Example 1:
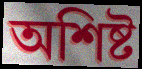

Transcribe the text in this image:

অশিষ্ট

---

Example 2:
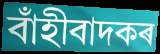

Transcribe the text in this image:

বাঁহীবাদকৰ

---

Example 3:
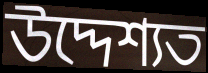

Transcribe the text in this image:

উদ্দেশ্যত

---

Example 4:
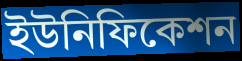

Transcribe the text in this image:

ইউনিফিকেশন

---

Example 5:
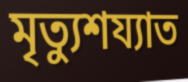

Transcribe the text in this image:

মৃত্যুশয্যাত